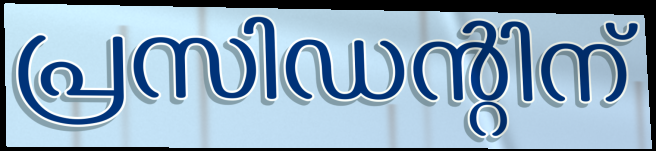
പ്രസിഡന്റിന്